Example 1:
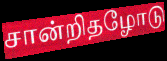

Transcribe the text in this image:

சான்றிதழோடு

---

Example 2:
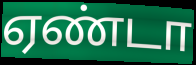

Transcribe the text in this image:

ஏண்டா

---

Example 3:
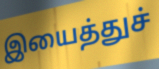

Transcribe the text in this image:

இயைத்துச்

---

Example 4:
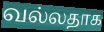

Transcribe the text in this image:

வல்லதாக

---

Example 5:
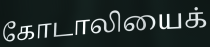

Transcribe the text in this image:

கோடாலியைக்